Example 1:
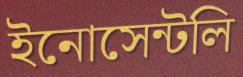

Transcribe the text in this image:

ইনোসেন্টলি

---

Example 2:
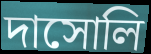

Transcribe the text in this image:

দাসোলি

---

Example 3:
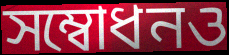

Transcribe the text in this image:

সম্বোধনও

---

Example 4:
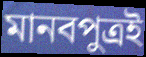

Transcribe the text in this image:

মানবপুত্রই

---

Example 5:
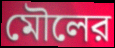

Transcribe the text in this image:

মৌলের